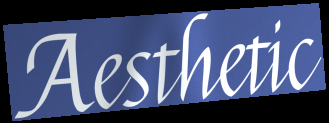
Aesthetic